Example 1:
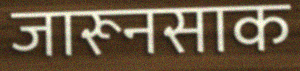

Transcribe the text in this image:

जारूनसाक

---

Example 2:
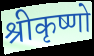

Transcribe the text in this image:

श्रीकृष्णो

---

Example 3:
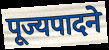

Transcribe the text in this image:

पूज्यपादने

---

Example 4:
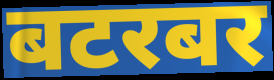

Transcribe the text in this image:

बटरबर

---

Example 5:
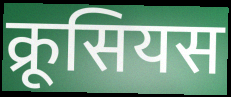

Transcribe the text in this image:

क्रूसियस